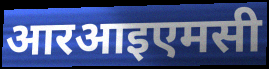
आरआइएमसी